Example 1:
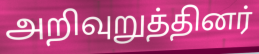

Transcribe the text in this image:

அறிவுறுத்தினர்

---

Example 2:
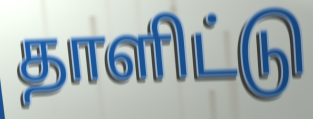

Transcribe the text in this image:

தாளிட்டு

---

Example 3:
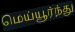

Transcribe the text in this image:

மெய்யூர்ந்து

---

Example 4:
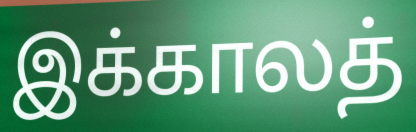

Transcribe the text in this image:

இக்காலத்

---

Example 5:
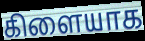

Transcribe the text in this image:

கிளையாக